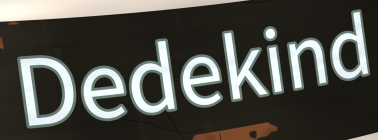
Dedekind